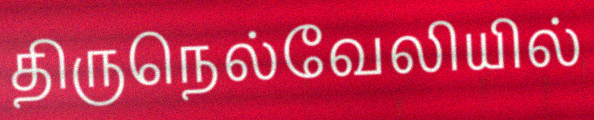
திருநெல்வேலியில்